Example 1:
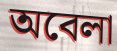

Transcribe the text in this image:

অবেলা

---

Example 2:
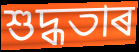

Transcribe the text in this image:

শুদ্ধতাৰ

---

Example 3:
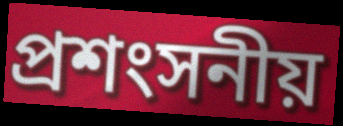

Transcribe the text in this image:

প্ৰশংসনীয়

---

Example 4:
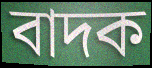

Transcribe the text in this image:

বাদক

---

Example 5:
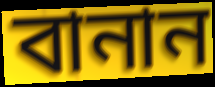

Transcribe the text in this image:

বানান